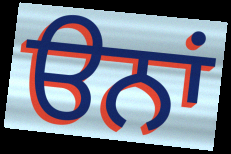
ੳਨਾਂ